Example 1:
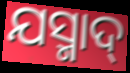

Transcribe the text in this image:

ଯସ୍ମାଦ୍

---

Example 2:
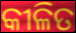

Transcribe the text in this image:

କୀଳିତ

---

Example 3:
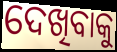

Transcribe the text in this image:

ଦେଖିବାକୁ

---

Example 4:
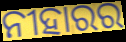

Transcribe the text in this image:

ନୀହାରର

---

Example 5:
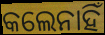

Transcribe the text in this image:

କଲେନାହିଁ